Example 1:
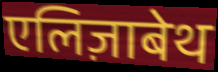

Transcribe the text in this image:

एलिज़ाबेथ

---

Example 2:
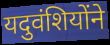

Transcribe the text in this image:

यदुवंशियोंने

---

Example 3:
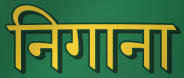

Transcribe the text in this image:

निगाना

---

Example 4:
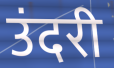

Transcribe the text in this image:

उंदरी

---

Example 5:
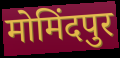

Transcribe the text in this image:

मोमिंदपुर